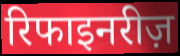
रिफाइनरीज़